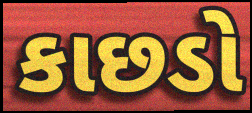
કાછડો